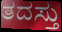
ತದಸ್ತು